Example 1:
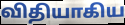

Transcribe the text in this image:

விதியாகிய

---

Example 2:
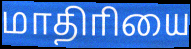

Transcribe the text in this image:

மாதிரியை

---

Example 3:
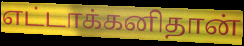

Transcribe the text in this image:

எட்டாக்கனிதான்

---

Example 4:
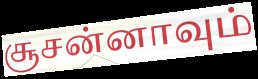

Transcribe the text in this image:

சூசன்னாவும்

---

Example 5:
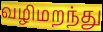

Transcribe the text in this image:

வழிமறந்து